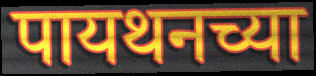
पायथनच्या